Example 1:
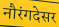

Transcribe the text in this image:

नौरंगदेसर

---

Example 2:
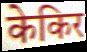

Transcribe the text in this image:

केकिर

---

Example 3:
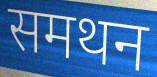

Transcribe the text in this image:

समथन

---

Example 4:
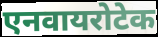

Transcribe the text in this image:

एनवायरोटेक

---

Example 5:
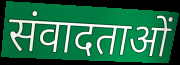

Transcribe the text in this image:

संवादताओं